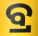
ବ୍ର